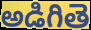
అడిగితె